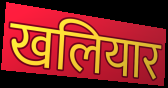
खलियार